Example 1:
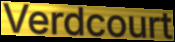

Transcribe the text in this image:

Verdcourt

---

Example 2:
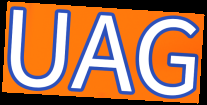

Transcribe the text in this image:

UAG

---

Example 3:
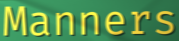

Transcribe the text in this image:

Manners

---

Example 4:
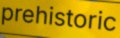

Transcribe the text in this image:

prehistoric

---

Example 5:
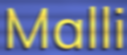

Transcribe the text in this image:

Malli